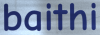
baithi